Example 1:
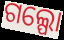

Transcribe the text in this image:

ଗଲ୍ପୋ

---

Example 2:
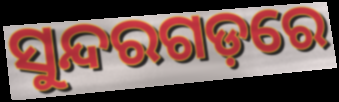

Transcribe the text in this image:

ସୁନ୍ଦରଗଡ଼ରେ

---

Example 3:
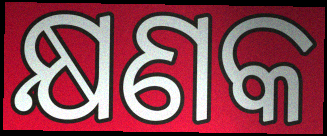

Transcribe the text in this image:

କ୍ଷଣକ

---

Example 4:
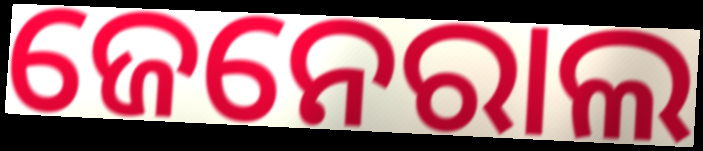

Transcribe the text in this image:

ଜେନେରାଲ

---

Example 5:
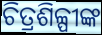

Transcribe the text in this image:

ଚିତ୍ରଶିଳ୍ପୀଙ୍କ